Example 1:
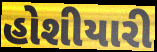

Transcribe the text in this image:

હોશીયારી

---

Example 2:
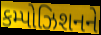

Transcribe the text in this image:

કમ્પોઝિશનને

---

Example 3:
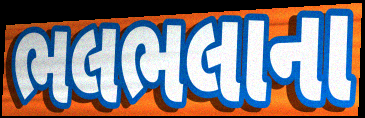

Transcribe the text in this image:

ભલભલાના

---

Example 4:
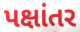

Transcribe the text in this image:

પક્ષાંતર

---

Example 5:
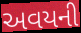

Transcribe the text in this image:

અવયની